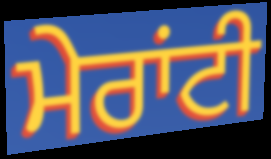
ਮੇਰਾਂਟੀ